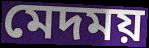
মেদময়